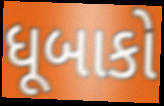
ધૂબાકો